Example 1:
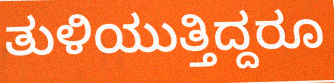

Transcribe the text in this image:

ತುಳಿಯುತ್ತಿದ್ದರೂ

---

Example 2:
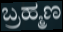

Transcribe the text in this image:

ಬ್ರಹ್ಮಣ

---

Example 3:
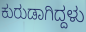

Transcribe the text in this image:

ಕುರುಡಾಗಿದ್ದಳು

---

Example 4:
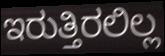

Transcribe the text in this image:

ಇರುತ್ತಿರಲಿಲ್ಲ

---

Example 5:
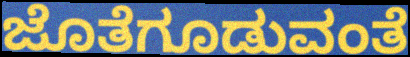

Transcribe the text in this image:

ಜೊತೆಗೂಡುವಂತೆ